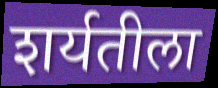
शर्यतीला